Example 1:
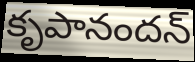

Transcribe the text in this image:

కృపానందన్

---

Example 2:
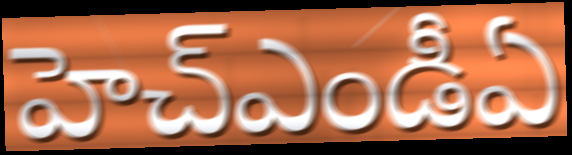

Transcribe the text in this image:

హెచ్ఎండీఏ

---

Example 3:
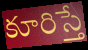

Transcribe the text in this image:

కూరిస్తే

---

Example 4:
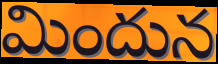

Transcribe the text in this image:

మిందున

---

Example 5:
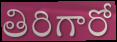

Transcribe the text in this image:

తిరిగారో